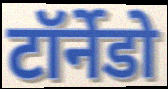
टॉर्नेडो